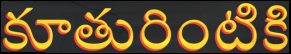
కూతురింటికి